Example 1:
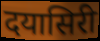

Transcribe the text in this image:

दयासिरी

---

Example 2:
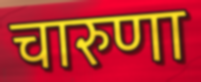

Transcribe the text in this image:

चारुणा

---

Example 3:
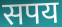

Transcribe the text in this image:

सपय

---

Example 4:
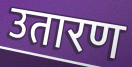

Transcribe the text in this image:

उतारण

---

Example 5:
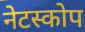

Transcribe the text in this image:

नेटस्कोप